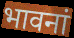
भावनां